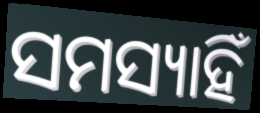
ସମସ୍ୟାହିଁ